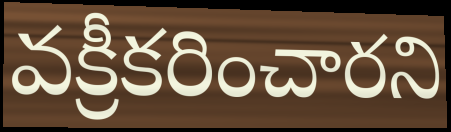
వక్రీకరించారని